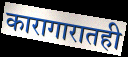
कारागारातही